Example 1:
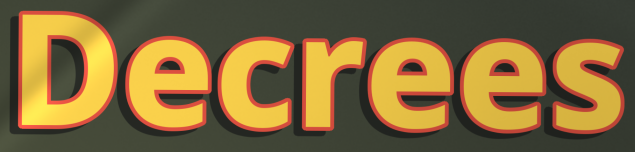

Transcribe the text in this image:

Decrees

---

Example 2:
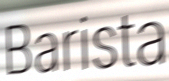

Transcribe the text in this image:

Barista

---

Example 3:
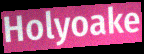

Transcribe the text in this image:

Holyoake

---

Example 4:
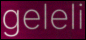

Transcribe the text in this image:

geleli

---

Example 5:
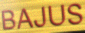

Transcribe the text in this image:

BAJUS